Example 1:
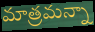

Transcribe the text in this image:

మాత్రమన్నా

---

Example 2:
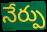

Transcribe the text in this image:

నేర్పు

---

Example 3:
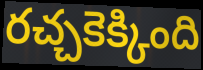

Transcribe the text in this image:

రచ్చకెక్కింది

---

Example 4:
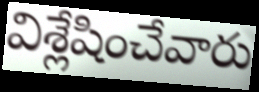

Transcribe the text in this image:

విశ్లేషించేవారు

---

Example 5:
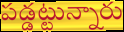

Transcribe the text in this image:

పడ్డట్టున్నారు